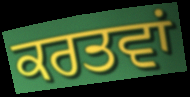
ਕਰਤਵਾਂ